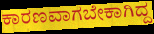
ಕಾರಣವಾಗಬೇಕಾಗಿದ್ದ